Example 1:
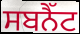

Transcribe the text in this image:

ਸਬਨੈੱਟ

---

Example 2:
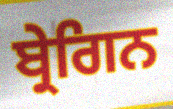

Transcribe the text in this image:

ਬ੍ਰੇਗਿਨ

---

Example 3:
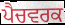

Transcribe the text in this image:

ਪੈਚਵਰਕ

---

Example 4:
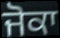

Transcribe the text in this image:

ਜੋਕਾ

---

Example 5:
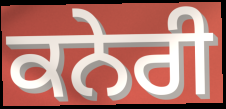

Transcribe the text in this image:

ਕਨੇਰੀ